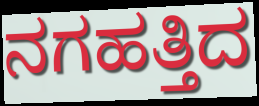
ನಗಹತ್ತಿದ